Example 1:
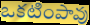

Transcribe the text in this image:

ఒకటింపావు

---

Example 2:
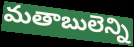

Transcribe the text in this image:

మతాబులెన్ని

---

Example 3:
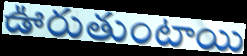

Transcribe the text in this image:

ఊరుతుంటాయి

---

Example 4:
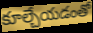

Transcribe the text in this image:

కూల్చేయడంతో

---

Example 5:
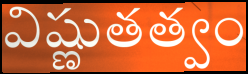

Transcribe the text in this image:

విష్ణుతత్వం